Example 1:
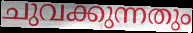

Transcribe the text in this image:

ചുവക്കുന്നതും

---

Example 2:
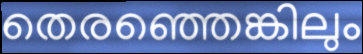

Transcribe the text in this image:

തെരഞ്ഞെങ്കിലും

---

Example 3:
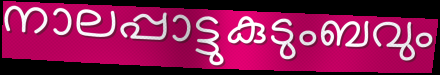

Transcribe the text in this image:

നാലപ്പാട്ടുകുടുംബവും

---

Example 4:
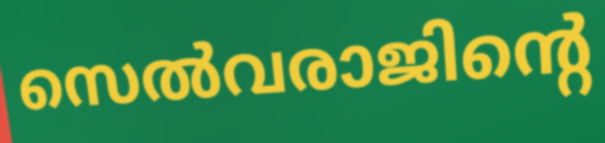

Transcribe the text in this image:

സെൽവരാജിന്റെ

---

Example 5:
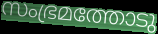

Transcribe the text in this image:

സംഭ്രമത്തോടു